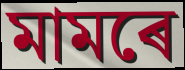
মামৰে